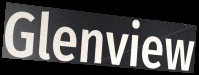
Glenview